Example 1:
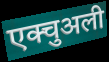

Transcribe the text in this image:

एक्चुअली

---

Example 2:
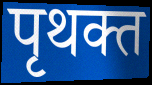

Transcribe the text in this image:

पृथक्त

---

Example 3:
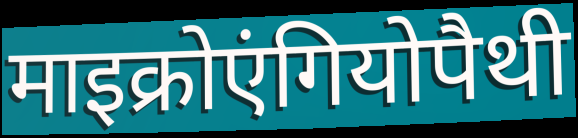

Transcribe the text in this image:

माइक्रोएंगियोपैथी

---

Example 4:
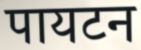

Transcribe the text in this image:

पायटन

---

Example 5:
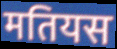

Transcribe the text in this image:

मतियस